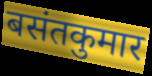
बसंतकुमार